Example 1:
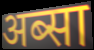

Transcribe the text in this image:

अब्सा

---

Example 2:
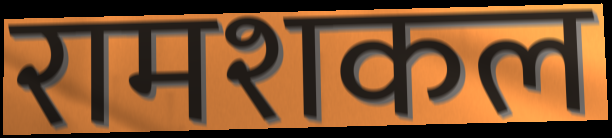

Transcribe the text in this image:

रामशकल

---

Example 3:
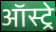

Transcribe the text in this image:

ऑस्ट्रे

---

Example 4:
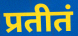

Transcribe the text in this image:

प्रतीतं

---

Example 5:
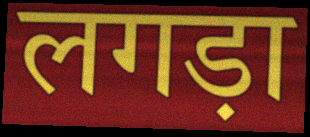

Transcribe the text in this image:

लगड़ा